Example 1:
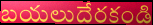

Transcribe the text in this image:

బయలుదేరకండి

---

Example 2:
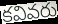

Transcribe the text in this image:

కవివరు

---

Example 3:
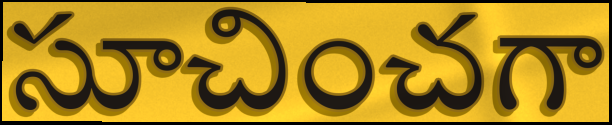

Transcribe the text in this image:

సూచించగా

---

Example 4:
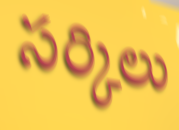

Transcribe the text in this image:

సర్కిలు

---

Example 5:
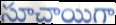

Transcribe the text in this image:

సూచాయిగా